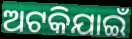
ଅଟକିଯାଇଁ